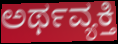
ಅರ್ಥವ್ಯಕ್ತಿ